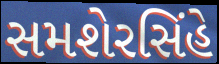
સમશેરસિંહે